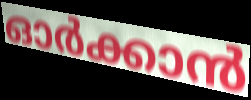
ഓർക്കാൻ